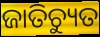
ଜାତିଚ୍ୟୁତ